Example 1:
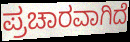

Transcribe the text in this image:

ಪ್ರಚಾರವಾಗಿದೆ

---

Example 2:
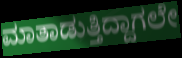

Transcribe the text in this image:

ಮಾತಾಡುತ್ತಿದ್ದಾಗಲೇ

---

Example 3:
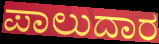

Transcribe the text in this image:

ಪಾಲುದಾರ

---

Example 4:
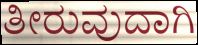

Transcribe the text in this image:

ತೀರುವುದಾಗಿ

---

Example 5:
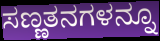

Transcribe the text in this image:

ಸಣ್ಣತನಗಳನ್ನೂ